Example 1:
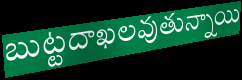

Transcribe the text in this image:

బుట్టదాఖలవుతున్నాయి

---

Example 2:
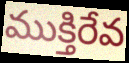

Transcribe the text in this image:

ముక్తిరేవ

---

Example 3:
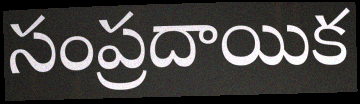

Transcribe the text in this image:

సంప్రదాయిక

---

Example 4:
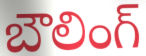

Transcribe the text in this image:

బౌలింగ్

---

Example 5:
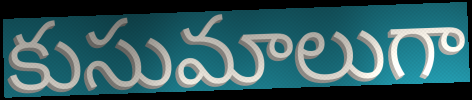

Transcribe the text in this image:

కుసుమాలుగా